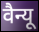
वैन्यू